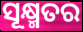
ସୂକ୍ଷ୍ମତର